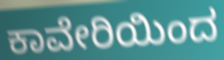
ಕಾವೇರಿಯಿಂದ